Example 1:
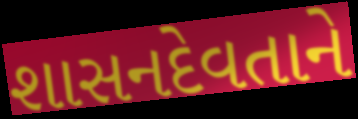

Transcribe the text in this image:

શાસનદેવતાને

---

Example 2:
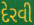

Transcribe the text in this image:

દેરવી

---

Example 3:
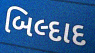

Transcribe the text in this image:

બિલ્દાદ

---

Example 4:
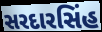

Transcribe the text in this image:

સરદારસિંહ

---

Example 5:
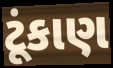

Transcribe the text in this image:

ટૂંકાણ